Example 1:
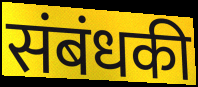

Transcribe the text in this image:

संबंधकी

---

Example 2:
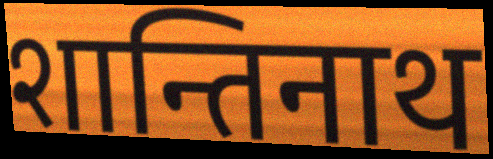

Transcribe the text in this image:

शान्तिनाथ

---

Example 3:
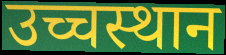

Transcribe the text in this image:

उच्चस्थान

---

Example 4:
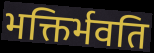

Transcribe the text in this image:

भक्तिर्भवति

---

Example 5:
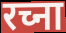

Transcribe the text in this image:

रच्ना